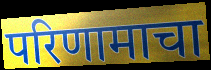
परिणामाचा